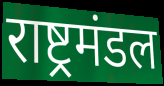
राष्ट्रमंडल